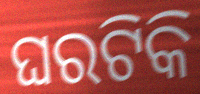
ଘରଟିକି